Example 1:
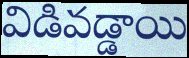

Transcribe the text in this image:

విడివడ్డాయి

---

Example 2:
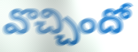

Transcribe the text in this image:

వొచ్చిందో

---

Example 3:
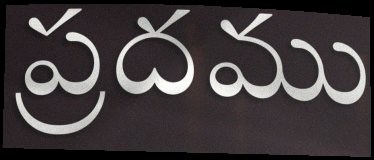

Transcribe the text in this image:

ప్రదము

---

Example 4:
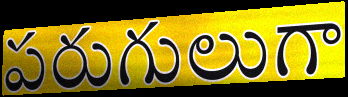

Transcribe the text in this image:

పరుగులుగా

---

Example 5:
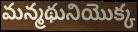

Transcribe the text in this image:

మన్మథునియొక్క